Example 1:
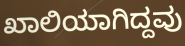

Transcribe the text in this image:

ಖಾಲಿಯಾಗಿದ್ದವು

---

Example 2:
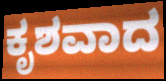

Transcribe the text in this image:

ಕೃಶವಾದ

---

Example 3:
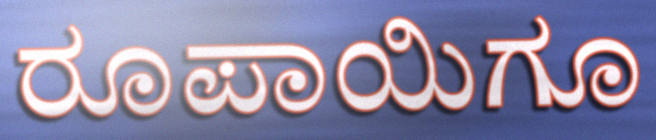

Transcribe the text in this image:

ರೂಪಾಯಿಗೂ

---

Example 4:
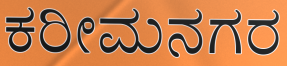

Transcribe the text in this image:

ಕರೀಮನಗರ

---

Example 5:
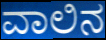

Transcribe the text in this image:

ವಾಲಿನ